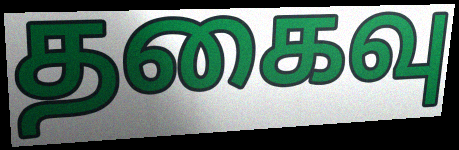
தகைவு